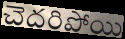
చెదరిపోయి